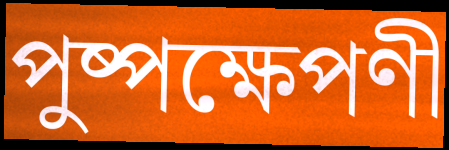
পুষ্পক্ষেপণী